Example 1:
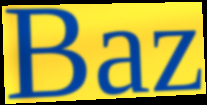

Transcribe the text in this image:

Baz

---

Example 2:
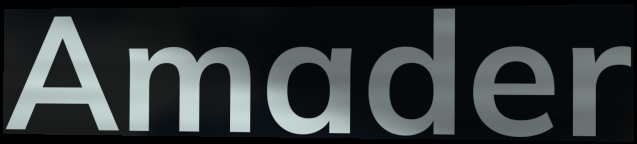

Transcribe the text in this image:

Amader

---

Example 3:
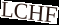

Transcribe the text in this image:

LCHF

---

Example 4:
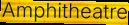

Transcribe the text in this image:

Amphitheatre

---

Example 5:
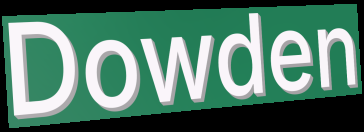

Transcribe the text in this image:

Dowden